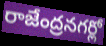
రాజేంద్రనగర్లో